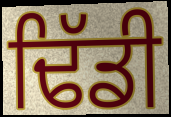
ਢਿੱਡੀ